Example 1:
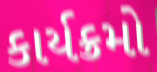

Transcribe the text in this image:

કાર્યક્રમો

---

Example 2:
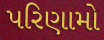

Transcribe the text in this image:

પરિણામો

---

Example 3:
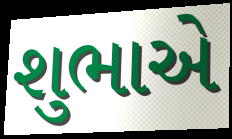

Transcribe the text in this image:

શુભાએ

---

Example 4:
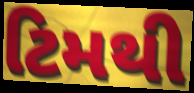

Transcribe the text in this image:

ટિમથી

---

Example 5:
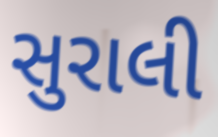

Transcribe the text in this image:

સુરાલી